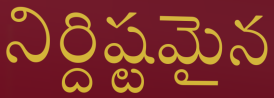
నిర్దిష్టమైన